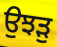
ਉਝੜੁ